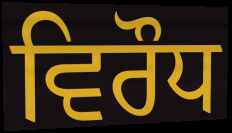
ਵਿਰੌਧ